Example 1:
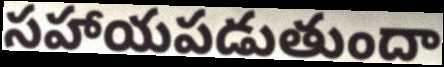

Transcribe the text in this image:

సహాయపడుతుందా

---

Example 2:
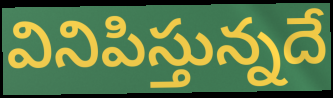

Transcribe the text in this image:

వినిపిస్తున్నదే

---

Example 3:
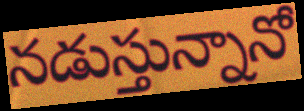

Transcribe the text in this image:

నడుస్తున్నానో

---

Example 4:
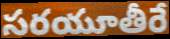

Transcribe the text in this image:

సరయూతీరే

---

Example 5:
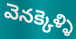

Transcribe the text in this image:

వెనక్కెళ్ళి